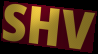
SHV